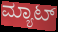
ಮ್ಯಾಟ್